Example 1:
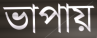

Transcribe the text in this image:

ভাপায়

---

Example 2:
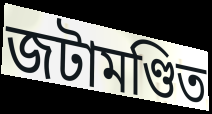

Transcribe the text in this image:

জটামণ্ডিত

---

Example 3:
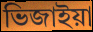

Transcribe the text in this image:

ভিজাইয়া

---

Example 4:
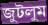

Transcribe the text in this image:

জুটলুম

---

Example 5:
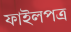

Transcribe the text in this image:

ফাইলপত্র